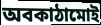
অবকাঠামোই